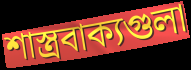
শাস্ত্রবাক্যগুলা